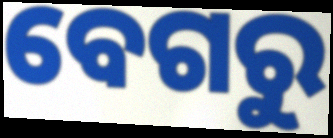
ବେଗରୁ